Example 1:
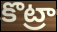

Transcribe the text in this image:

కొట్రా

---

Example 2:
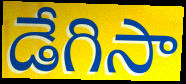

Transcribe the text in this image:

డేగిసా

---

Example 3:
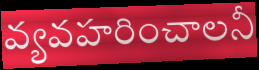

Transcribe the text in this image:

వ్యవహరించాలనీ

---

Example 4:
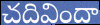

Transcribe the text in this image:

చదివిందా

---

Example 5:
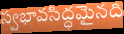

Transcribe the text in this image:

స్వభావసిద్ధమైనది